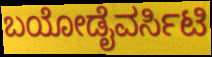
ಬಯೋಡೈವರ್ಸಿಟಿ